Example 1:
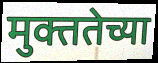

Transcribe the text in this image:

मुक्ततेच्या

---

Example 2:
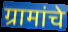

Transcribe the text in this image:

ग्रामांचे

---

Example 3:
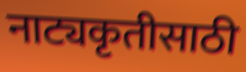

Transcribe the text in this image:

नाट्यकृतीसाठी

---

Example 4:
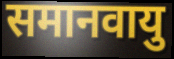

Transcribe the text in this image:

समानवायु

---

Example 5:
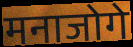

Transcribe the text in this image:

मनाजोगे